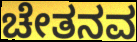
ಚೇತನವ